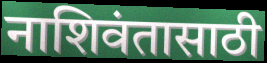
नाशिवंतासाठी